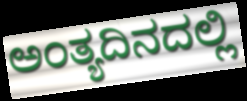
ಅಂತ್ಯದಿನದಲ್ಲಿ